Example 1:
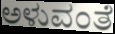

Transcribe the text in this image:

ಅಳುವಂತೆ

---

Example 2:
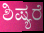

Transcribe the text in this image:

ಶಿಷ್ಯರೆ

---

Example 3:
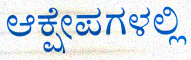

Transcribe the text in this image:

ಆಕ್ಷೇಪಗಳಲ್ಲಿ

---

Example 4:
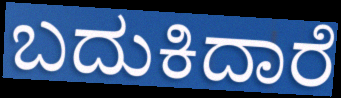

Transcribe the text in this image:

ಬದುಕಿದಾರೆ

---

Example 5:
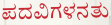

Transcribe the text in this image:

ಪದವಿಗಳನತು